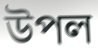
উপল